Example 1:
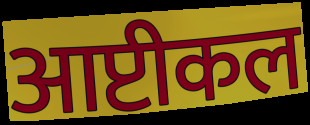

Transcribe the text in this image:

आप्टीकल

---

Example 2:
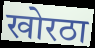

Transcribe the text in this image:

खोरठा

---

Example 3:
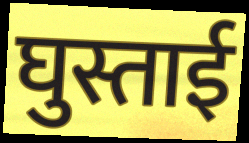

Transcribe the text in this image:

घुस्ताई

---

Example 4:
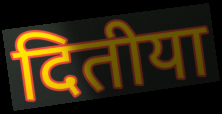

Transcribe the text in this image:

दितीया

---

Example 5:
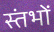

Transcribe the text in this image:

स्तंभों